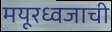
मयूरध्वजाची